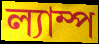
ল্যাম্প